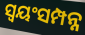
ସ୍ବୟଂସମ୍ପନ୍ନ